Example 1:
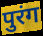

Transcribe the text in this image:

पुरंग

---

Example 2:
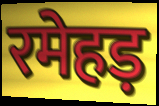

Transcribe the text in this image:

रमेहड़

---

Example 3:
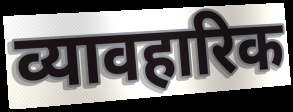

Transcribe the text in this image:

व्यावहारिक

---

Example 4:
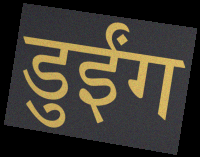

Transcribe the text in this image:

डुईंग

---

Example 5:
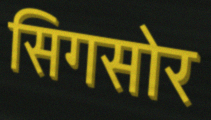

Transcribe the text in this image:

सिगसोर